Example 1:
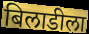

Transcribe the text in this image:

बिलाडीला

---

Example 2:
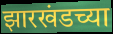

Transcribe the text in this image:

झारखंडच्या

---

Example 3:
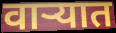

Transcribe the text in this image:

वाऱ्यात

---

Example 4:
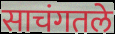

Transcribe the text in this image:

साचंगतले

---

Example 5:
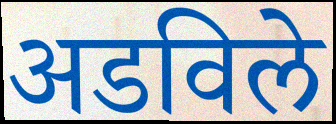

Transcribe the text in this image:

अडविले